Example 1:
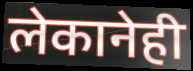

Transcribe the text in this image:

लेकानेही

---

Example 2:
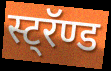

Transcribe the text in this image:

स्ट्रॅण्ड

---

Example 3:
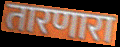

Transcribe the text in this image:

तारणारा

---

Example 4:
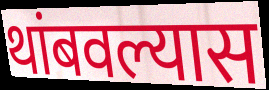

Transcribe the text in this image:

थांबवल्यास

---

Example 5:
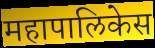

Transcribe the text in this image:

महापालिकेस